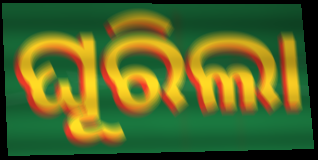
ଘୂରିଲା